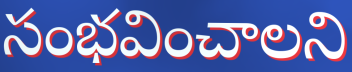
సంభవించాలని